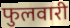
फुलवारी